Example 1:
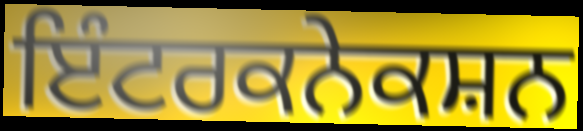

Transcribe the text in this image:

ਇੰਟਰਕਨੇਕਸ਼ਨ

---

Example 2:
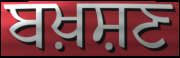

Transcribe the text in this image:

ਬਖ਼ਸ਼ਣ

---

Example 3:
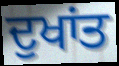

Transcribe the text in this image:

ਦੁਖਾਂਤ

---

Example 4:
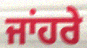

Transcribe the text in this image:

ਜਾਂਹਰੇ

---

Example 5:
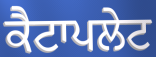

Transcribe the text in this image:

ਕੈਟਾਪਲੇਟ